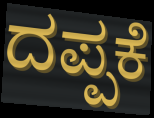
ದಪ್ಪಕೆ